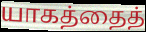
யாகத்தைத்